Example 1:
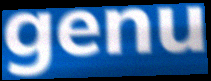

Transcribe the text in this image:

genu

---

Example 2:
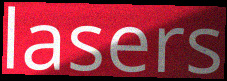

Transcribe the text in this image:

lasers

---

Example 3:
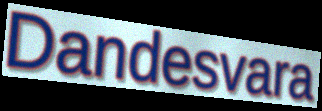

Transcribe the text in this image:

Dandesvara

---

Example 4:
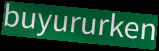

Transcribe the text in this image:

buyururken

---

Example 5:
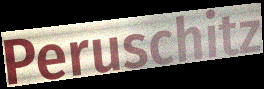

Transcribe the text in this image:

Peruschitz